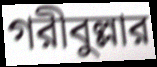
গরীবুল্লার